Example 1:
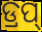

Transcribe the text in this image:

ଡ୍ରପ୍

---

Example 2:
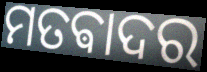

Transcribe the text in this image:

ମତଵାଦର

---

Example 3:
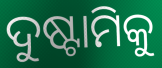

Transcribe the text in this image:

ଦୁଷ୍ଟାମିକୁ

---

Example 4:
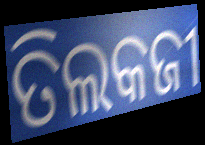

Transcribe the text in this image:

ତିଲକଜୀ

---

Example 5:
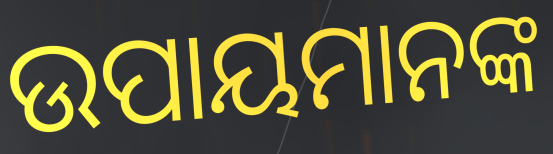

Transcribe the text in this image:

ଉପାୟମାନଙ୍କ